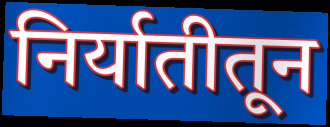
निर्यातीतून